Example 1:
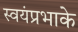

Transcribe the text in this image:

स्वयंप्रभाके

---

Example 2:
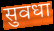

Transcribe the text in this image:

सुवधा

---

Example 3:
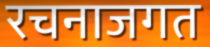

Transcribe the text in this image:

रचनाजगत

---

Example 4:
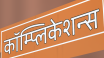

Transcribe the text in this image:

कॉम्प्लिकेशन्स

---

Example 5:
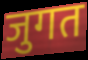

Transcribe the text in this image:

जुगत